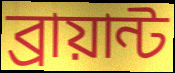
ব্রায়ান্ট